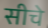
सीचे